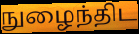
நுழைந்திட